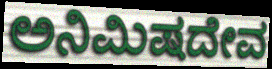
ಅನಿಮಿಷದೇವ